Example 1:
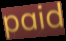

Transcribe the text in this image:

paid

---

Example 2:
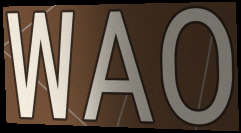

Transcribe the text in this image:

WAO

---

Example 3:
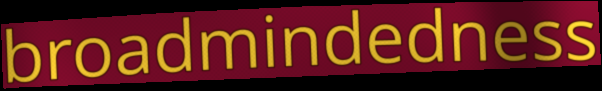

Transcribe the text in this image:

broadmindedness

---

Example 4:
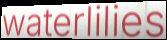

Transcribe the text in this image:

waterlilies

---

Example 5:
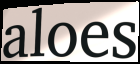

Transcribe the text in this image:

aloes